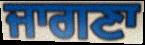
ਜਾਗਣਾ